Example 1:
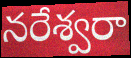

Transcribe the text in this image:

నరేశ్వరా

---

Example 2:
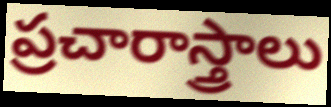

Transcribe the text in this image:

ప్రచారాస్త్రాలు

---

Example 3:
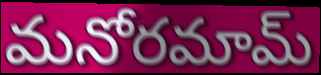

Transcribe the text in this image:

మనోరమామ్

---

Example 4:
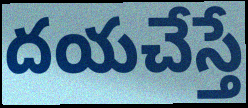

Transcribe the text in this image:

దయచేస్తే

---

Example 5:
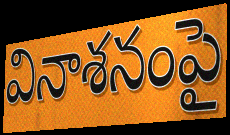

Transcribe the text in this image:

వినాశనంపై